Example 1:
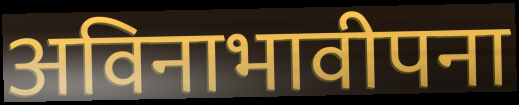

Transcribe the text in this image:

अविनाभावीपना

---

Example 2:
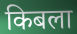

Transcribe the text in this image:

किबला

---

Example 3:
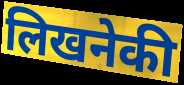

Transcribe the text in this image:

लिखनेकी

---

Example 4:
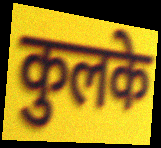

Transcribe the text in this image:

कुलके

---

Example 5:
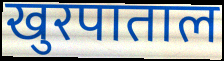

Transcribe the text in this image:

खुरपाताल